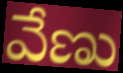
వేణు